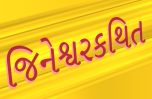
જિનેશ્વરકથિત